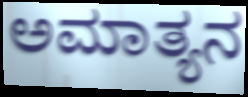
ಅಮಾತ್ಯನ